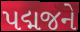
પદ્મજને